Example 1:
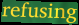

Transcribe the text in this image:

refusing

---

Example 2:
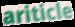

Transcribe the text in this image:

ariticle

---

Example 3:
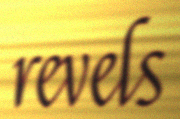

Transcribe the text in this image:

revels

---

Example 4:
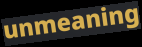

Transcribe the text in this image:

unmeaning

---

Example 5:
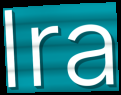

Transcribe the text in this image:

Ira